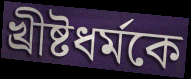
খ্রীষ্টধর্মকে